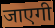
जाएगी